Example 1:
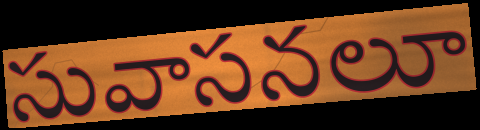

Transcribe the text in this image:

సువాసనలూ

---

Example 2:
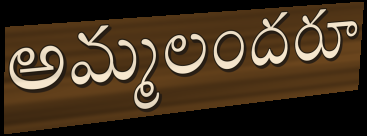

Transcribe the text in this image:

అమ్మలందరూ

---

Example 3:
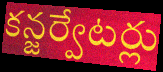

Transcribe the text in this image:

కన్జర్వేటర్లు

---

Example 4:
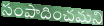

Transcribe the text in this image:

సంపాదించమని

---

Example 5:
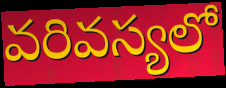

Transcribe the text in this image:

వరివస్యలో